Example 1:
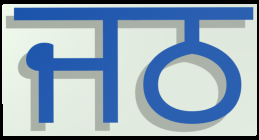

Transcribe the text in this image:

ਜਠ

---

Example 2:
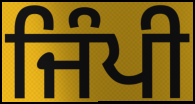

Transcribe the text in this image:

ਜਿੰਪੀ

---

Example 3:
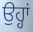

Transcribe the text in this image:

ਉਹ੍ਹਾਂ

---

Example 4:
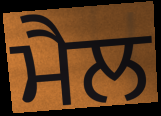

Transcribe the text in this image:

ਮੈਲ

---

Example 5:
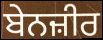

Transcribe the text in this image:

ਬੇਨਜ਼ੀਰ